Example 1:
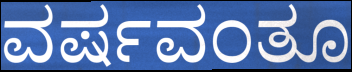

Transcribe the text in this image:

ವರ್ಷವಂತೂ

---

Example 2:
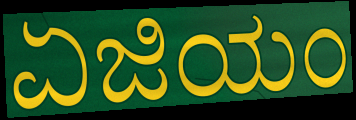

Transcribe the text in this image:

ಏಜಿಯಂ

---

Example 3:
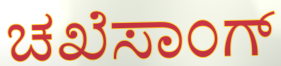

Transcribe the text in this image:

ಚಖೆಸಾಂಗ್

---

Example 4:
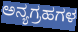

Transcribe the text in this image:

ಅನ್ಯಗ್ರಹಗಳ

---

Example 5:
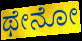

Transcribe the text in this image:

ಥೇನೋ